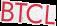
BTCL